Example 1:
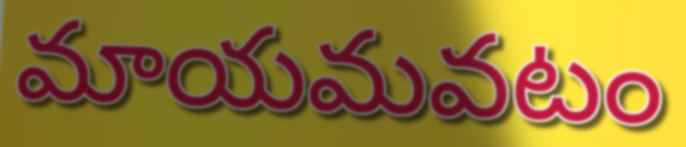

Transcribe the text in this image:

మాయమవటం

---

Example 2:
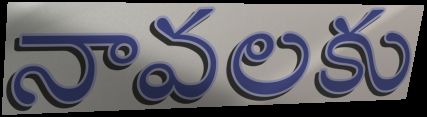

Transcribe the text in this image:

నావలకు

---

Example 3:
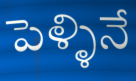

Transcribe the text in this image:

పెళ్ళినే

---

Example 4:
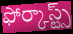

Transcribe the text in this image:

ఫోర్కాస్ట్స్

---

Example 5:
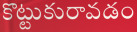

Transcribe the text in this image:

కొట్టుకురావడం